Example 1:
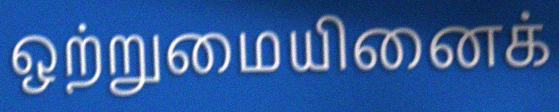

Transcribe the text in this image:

ஒற்றுமையினைக்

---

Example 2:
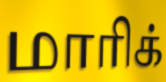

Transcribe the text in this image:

மாரிக்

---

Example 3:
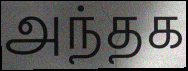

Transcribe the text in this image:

அந்தக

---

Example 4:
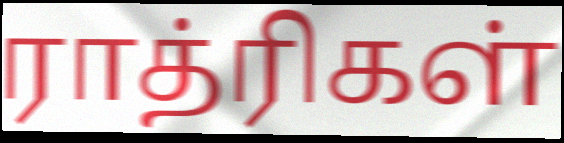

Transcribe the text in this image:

ராத்ரிகள்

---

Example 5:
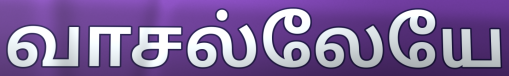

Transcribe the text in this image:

வாசல்லேயே